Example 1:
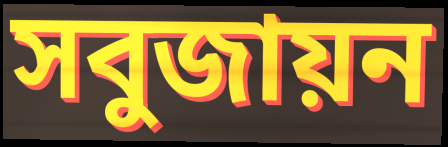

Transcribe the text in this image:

সবুজায়ন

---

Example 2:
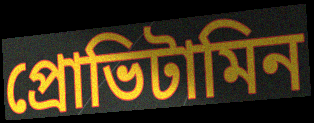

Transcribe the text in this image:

প্রোভিটামিন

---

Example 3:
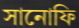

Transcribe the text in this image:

সানোফি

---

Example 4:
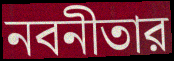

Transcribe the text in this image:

নবনীতার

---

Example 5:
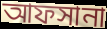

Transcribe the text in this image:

আফসানা